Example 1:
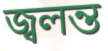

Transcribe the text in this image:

জ্বলন্ত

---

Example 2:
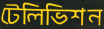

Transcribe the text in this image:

টেলিভিশন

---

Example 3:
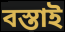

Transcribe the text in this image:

বস্তাই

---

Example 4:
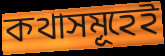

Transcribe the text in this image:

কথাসমূহেই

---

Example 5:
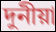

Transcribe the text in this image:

দুনীয়া